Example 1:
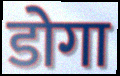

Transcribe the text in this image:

डोगा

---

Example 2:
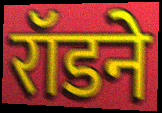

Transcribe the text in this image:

रॉडने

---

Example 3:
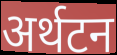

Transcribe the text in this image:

अर्थटन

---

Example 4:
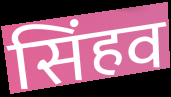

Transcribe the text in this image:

सिंहव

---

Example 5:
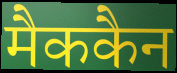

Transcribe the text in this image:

मैककैन